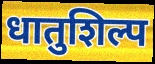
धातुशिल्प